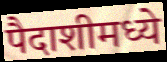
पैदाशीमध्ये